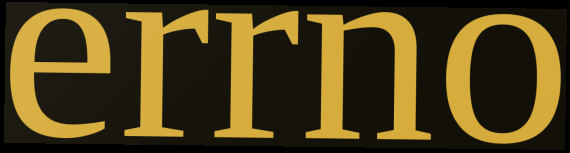
errno